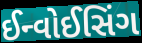
ઈન્વોઈસિંગ